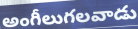
అంగీలుగలవాడు